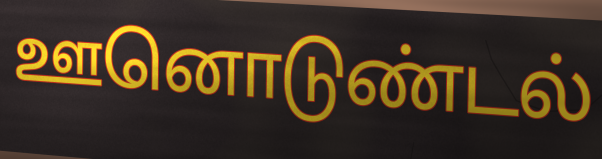
ஊனொடுண்டல்